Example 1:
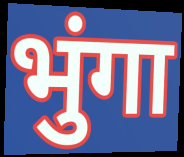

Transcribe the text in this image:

भुंगा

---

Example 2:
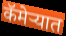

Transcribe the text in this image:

कॅमेऱ्यात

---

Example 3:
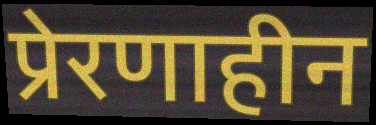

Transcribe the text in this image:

प्रेरणाहीन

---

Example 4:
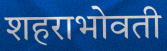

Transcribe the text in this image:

शहराभोवती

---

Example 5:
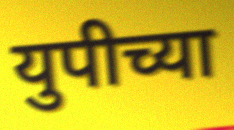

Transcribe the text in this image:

युपीच्या